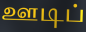
ஊடிப்